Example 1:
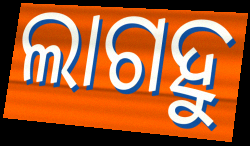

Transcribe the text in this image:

ଲାଗହୁ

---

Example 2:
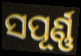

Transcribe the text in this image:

ସପୂର୍ଣ୍ଣ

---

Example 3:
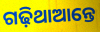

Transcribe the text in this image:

ଗଢ଼ିଥାଆନ୍ତେ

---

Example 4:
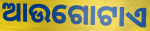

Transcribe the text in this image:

ଆଉଗୋଟାଏ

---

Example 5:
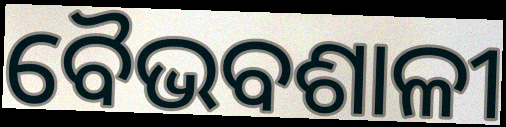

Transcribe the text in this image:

ବୈଭବଶାଳୀ